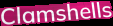
Clamshells